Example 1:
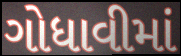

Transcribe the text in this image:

ગોધાવીમાં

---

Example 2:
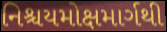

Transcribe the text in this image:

નિશ્ચયમોક્ષમાર્ગથી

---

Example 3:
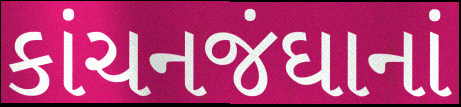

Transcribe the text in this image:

કાંચનજંઘાનાં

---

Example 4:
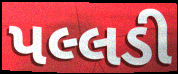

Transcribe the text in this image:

પલ્લડી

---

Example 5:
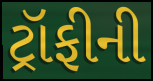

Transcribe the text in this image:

ટ્રૉફીની